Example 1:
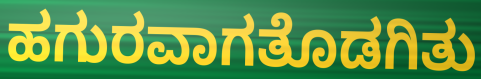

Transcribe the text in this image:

ಹಗುರವಾಗತೊಡಗಿತು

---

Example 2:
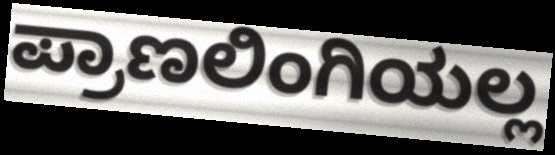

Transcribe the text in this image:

ಪ್ರಾಣಲಿಂಗಿಯಲ್ಲ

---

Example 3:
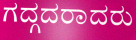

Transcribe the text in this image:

ಗದ್ಗದರಾದರು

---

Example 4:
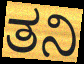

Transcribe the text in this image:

ತನಿ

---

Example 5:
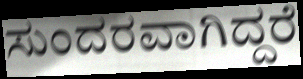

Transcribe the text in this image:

ಸುಂದರವಾಗಿದ್ದರೆ